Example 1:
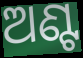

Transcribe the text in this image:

ଅଣ୍ଟ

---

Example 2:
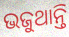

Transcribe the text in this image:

ଭଜୁଥାନ୍ତି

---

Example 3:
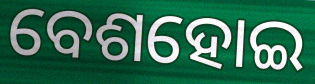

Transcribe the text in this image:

ବେଶହୋଇ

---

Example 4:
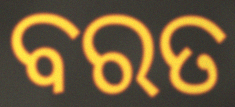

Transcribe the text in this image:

ବରତ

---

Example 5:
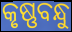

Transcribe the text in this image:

କୃଷ୍ଣବନ୍ଧୁ